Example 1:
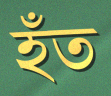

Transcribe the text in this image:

হঁত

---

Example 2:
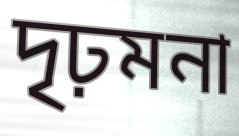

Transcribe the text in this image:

দৃঢ়মনা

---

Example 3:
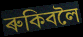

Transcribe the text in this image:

ৰুকিবলৈ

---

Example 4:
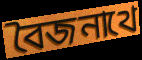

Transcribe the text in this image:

বৈজনাথে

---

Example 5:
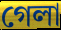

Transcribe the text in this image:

গেলা